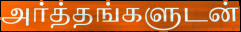
அர்த்தங்களுடன்